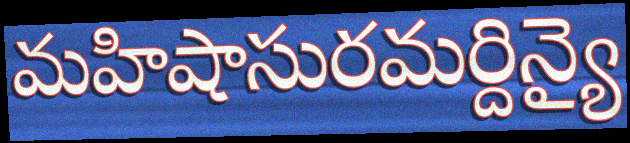
మహిషాసురమర్దిన్యై